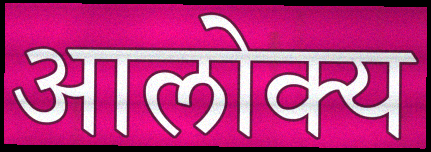
आलोक्य